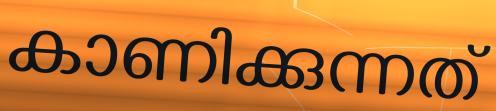
കാണിക്കുന്നത്